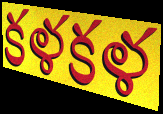
కళకళ